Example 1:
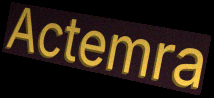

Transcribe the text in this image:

Actemra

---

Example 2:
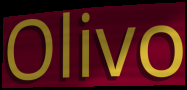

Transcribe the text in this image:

Olivo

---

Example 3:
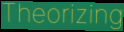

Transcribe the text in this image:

Theorizing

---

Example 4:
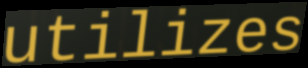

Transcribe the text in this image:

utilizes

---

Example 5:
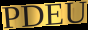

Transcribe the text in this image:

PDEU